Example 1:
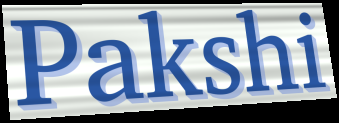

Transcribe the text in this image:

Pakshi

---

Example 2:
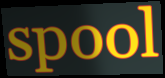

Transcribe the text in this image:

spool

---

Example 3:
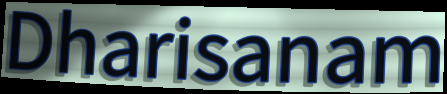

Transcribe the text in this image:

Dharisanam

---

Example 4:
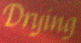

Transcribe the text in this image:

Drying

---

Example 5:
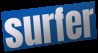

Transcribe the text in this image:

surfer